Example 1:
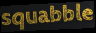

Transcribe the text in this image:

squabble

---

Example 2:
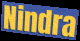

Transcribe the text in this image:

Nindra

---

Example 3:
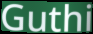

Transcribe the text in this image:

Guthi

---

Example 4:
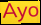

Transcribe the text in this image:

Ayo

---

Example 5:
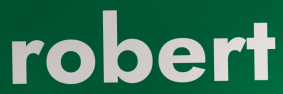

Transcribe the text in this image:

robert